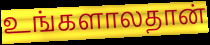
உங்களாலதான்